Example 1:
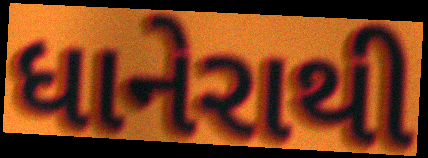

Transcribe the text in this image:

ધાનેરાથી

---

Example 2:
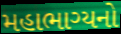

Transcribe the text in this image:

મહાભાગ્યનો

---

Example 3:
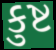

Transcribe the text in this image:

કુષ્ટ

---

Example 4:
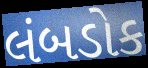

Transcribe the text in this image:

લંબડોક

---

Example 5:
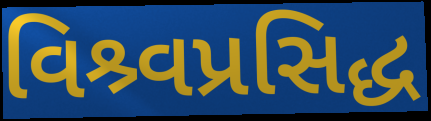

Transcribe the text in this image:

વિશ્ર્વપ્રસિદ્ધ